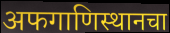
अफगाणिस्थानचा